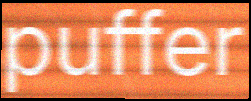
puffer